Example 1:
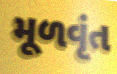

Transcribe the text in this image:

મૂળવૃંત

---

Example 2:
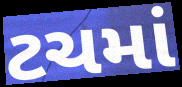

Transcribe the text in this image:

ટચમાં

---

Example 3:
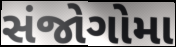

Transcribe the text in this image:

સંજોગોમા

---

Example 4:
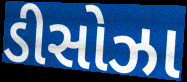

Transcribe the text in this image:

ડીસોઝા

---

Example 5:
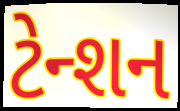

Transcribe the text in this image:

ટેન્શન